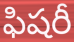
ఫిషరీ